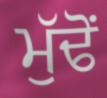
ਮੁੱਢੋਂ